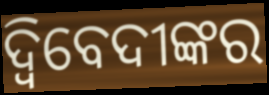
ଦ୍ଵିବେଦୀଙ୍କର